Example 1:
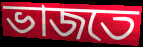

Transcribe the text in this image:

ভাজতে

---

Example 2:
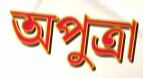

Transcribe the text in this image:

অপুত্রা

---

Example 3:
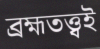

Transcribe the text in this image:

ব্রহ্মতত্ত্বই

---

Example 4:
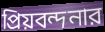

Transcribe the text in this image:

প্রিয়বন্দনার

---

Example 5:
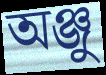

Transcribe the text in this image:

অঞ্জু